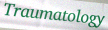
Traumatology